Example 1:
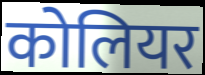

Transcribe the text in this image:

कोलियर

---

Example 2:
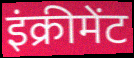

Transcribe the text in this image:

इंक्रीमेंट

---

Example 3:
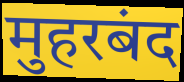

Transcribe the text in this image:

मुहरबंद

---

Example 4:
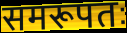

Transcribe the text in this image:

समरूपतः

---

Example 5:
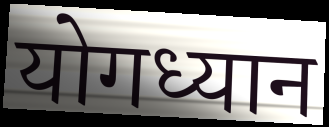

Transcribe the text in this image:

योगध्यान